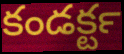
కండక్టర్‍